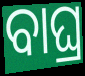
ବାଘ୍ର